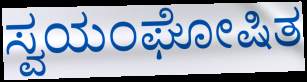
ಸ್ವಯಂಘೋಷಿತ